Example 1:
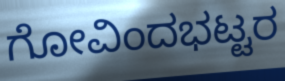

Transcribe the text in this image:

ಗೋವಿಂದಭಟ್ಟರ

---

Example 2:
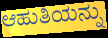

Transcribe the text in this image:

ಆಹುತಿಯನ್ನು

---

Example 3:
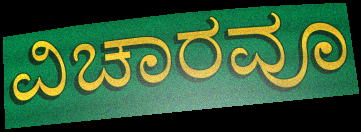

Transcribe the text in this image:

ವಿಚಾರವೂ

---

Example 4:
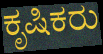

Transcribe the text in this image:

ಕೃಷಿಕರು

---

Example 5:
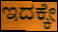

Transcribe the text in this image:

ಇದಕ್ಕೇ